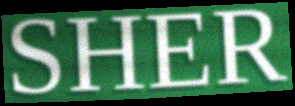
SHER